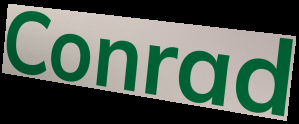
Conrad